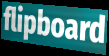
flipboard